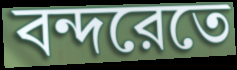
বন্দরেতে